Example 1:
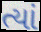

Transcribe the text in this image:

ત્‍યાં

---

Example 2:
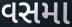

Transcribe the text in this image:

વસમા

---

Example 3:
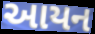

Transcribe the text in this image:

આયન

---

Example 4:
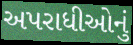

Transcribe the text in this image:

અપરાધીઓનું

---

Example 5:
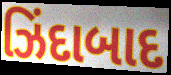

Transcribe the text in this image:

ઝિંદાબાદ